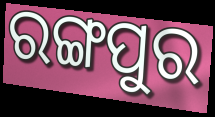
ରଙ୍ଗପୁର